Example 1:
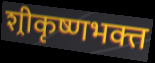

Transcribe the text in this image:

श्रीकृष्णभक्त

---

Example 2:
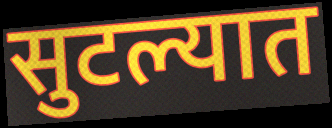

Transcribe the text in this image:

सुटल्यात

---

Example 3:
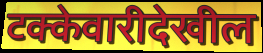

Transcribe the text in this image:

टक्केवारीदेखील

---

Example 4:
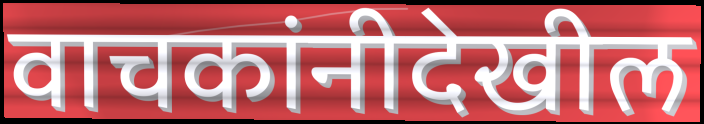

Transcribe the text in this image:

वाचकांनीदेखील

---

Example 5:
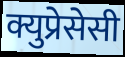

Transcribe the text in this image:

क्युप्रेसेसी